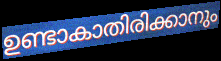
ഉണ്ടാകാതിരിക്കാനും